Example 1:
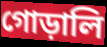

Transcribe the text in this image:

গোড়ালি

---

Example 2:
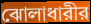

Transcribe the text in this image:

ঝোলাধারীর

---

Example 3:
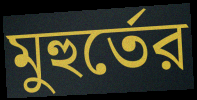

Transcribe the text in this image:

মুহুর্তের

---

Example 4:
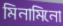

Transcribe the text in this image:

মিনামিনো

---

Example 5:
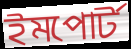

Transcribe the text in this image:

ইমপোর্ট